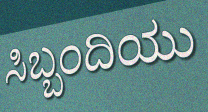
ಸಿಬ್ಬಂದಿಯು